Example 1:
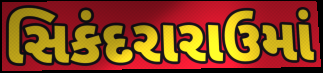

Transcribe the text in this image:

સિકંદરારાઉમાં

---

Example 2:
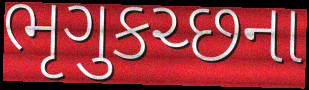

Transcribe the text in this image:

ભૃગુકચ્છના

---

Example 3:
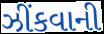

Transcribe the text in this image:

ઝીંકવાની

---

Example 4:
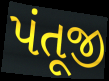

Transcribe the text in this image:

પંતૂજી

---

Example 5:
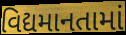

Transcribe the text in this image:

વિદ્યમાનતામાં